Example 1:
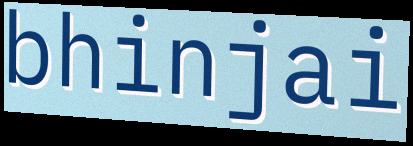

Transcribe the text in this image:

bhinjai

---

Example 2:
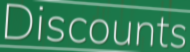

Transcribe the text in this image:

Discounts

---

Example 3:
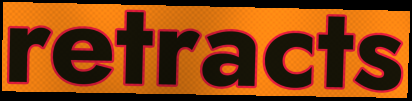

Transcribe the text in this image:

retracts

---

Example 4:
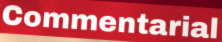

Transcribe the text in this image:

Commentarial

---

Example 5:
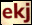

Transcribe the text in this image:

ekj